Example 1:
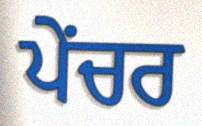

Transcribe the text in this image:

ਪੇਂਚਰ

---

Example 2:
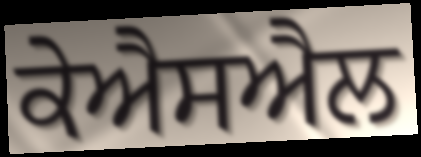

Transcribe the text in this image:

ਕੇਐਸਐਲ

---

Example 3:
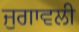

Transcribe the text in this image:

ਜੁਗਾਵਲੀ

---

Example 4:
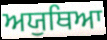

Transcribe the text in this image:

ਅਯੁਥਿਆ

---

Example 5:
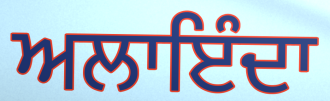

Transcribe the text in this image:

ਅਲਾਇੰਦਾ